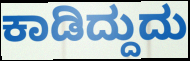
ಕಾಡಿದ್ದುದು